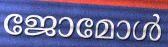
ജോമോൾ